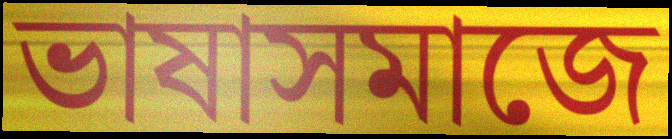
ভাষাসমাজে